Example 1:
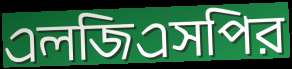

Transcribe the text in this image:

এলজিএসপির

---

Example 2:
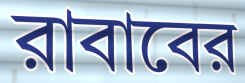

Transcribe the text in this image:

রাবাবের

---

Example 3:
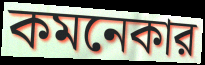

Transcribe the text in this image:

কমনেকার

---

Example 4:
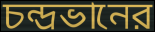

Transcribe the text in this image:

চন্দ্রভানের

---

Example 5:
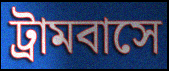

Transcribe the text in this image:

ট্রামবাসে